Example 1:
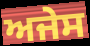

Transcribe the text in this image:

ਅਜੇਸ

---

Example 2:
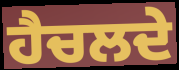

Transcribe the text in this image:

ਹੈਚਲਦੇ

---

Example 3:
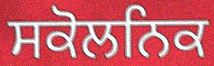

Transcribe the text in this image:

ਸਕੋਲਨਿਕ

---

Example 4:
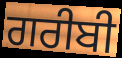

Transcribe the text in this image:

ਗਰੀਬੀ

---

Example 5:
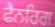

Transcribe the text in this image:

ਫੈਨਰਿਗ